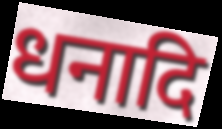
धनादि